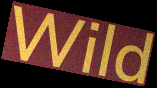
Wild